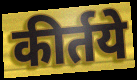
कीर्तये